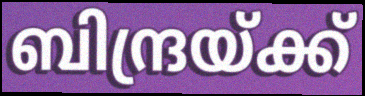
ബിന്ദ്രയ്ക്ക്